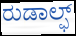
ರುಡಾಲ್ಫ್